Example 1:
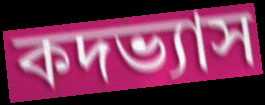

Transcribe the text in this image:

কদভ্যাস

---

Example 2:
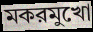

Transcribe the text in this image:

মকরমুখো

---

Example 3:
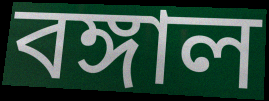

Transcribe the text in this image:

বঙ্গাল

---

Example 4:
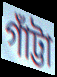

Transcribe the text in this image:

গাঁট্টা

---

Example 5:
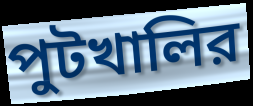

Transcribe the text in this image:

পুটখালির